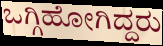
ಒಗ್ಗಿಹೋಗಿದ್ದರು